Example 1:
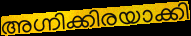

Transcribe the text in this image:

അഗ്നിക്കിരയാക്കി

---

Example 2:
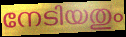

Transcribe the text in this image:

നേടിയതും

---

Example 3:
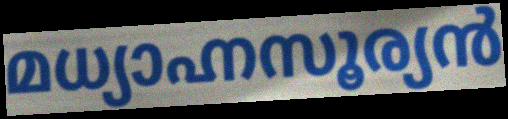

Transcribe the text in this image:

മധ്യാഹ്നസൂര്യൻ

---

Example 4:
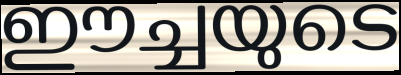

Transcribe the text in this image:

ഈച്ചയുടെ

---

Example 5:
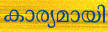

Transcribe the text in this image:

കാര്യമായി